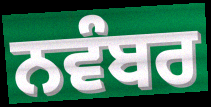
ਨਵੰਬਰ